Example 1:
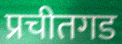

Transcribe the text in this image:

प्रचीतगड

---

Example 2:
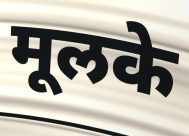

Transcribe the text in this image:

मूलके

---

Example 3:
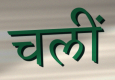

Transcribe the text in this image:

चलीं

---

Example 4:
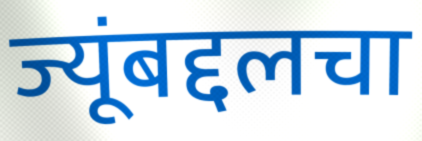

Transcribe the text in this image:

ज्यूंबद्दलचा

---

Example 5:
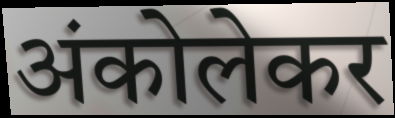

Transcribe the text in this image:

अंकोलेकर